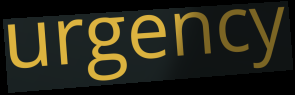
urgency